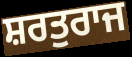
ਸ਼ਰਤੁਰਾਜ